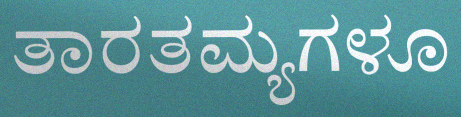
ತಾರತಮ್ಯಗಳೂ